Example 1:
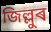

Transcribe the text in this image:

জিল্লুৰ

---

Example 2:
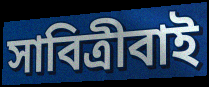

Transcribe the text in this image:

সাবিত্ৰীবাই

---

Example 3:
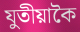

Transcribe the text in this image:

যুতীয়াকৈ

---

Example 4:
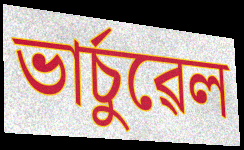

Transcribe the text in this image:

ভাৰ্চুৱেল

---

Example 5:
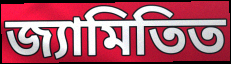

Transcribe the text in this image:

জ্যামিতিত